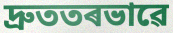
দ্ৰুততৰভাৱে